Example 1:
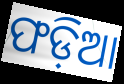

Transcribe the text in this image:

ଫଡ଼ିଆ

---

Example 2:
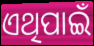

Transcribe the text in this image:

ଏଥିପାଇଁ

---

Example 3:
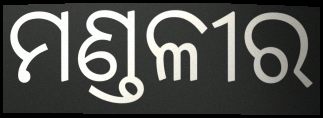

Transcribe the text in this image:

ମଣ୍ଡଳୀର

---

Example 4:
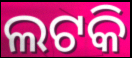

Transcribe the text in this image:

ଲଟକି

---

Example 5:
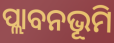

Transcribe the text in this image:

ପ୍ଲାବନଭୂମି